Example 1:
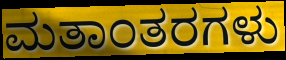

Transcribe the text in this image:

ಮತಾಂತರಗಳು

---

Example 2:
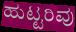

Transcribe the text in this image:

ಹುಟ್ಟರಿವು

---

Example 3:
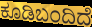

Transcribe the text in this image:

ಕೂಡಿಬಂದಿದೆ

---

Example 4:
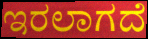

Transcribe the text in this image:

ಇರಲಾಗದೆ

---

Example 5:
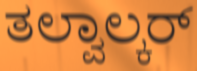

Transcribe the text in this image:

ತಲ್ವಾಲ್ಕರ್